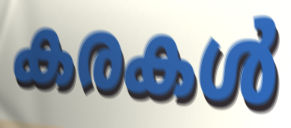
കരകൾ